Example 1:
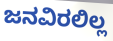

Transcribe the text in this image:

ಜನವಿರಲಿಲ್ಲ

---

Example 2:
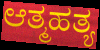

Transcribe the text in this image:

ಆತ್ಮಹತ್ಯ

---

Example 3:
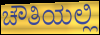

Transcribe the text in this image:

ಚೌತಿಯಲ್ಲಿ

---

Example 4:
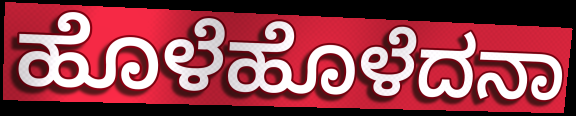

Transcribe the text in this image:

ಹೊಳೆಹೊಳೆದನಾ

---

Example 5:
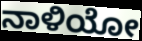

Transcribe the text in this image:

ನಾಳಿಯೋ